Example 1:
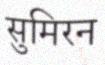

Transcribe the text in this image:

सुमिरन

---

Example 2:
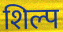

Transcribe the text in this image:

शिल्‍प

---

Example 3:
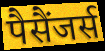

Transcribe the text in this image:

पैसैंजर्स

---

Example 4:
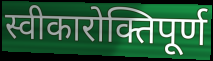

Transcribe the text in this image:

स्वीकारोक्तिपूर्ण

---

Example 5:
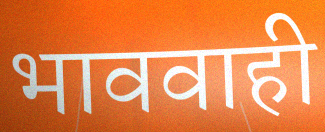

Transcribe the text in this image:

भाववाही